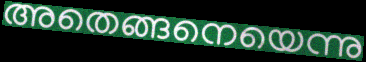
അതെങ്ങനെയെന്നു